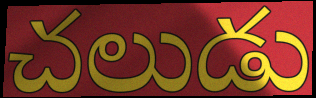
చలుడు